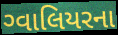
ગ્વાલિયરના